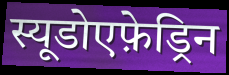
स्यूडोएफ़ेड्रिन